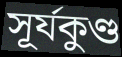
সূর্যকুণ্ড